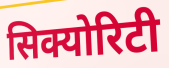
सिक्योरिटी